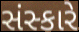
સંસ્કારે